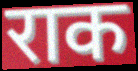
राक